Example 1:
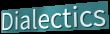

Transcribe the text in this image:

Dialectics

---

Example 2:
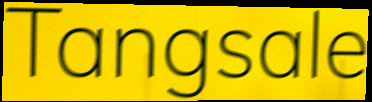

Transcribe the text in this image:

Tangsale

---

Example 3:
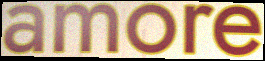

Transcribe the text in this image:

amore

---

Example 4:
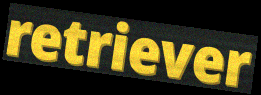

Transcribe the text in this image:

retriever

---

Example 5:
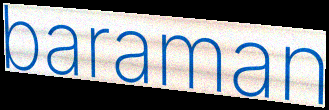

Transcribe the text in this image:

baraman